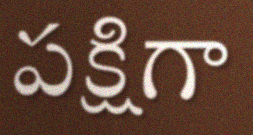
పక్షిగా